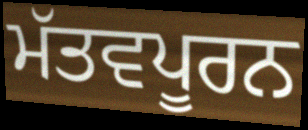
ਮੱਤਵਪੂਰਨ